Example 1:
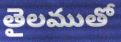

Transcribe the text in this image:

తైలముతో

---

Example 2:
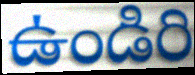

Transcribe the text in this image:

ఉండిరి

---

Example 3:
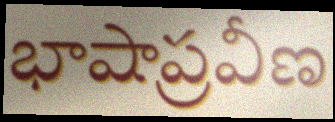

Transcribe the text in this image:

భాషాప్రవీణ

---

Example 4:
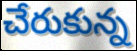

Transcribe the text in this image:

చేరుకున్న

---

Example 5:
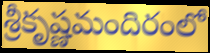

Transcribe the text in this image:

శ్రీకృష్ణమందిరంలో